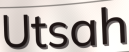
Utsah